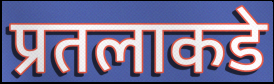
प्रतलाकडे